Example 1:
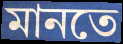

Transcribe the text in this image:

মানতে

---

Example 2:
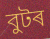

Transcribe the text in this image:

বুটৰ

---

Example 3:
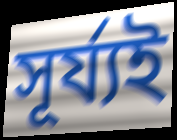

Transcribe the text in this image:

সূৰ্য্যই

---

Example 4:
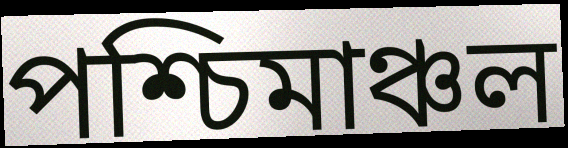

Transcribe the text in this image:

পশ্চিমাঞ্চল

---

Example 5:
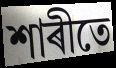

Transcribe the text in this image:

শাৰীতে